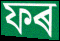
ফৰ